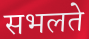
सभलते